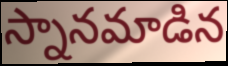
స్నానమాడిన